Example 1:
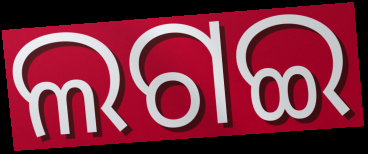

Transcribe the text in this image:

ଲଗଇ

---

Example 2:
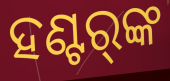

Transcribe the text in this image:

ହଣ୍ଟର୍‌ଙ୍କ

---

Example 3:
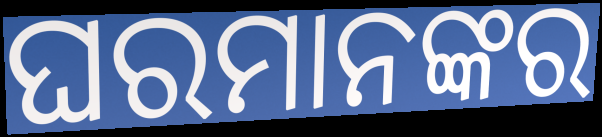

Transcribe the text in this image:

ଘରମାନଙ୍କର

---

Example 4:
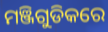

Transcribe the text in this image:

ମଞ୍ଜିଗୁଡିକରେ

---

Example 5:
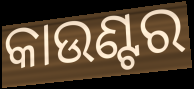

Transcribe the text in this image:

କାଉଣ୍ଟର